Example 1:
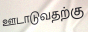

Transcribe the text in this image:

ஊடாடுவதற்கு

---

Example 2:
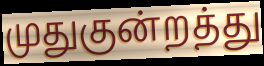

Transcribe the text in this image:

முதுகுன்றத்து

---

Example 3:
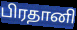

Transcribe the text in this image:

பிரதானி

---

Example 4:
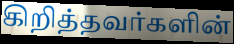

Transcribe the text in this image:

கிறித்தவர்களின்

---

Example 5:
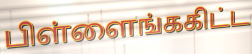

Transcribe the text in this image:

பிள்ளைங்ககிட்ட